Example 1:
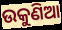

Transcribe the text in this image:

ଉକୁଣିଆ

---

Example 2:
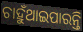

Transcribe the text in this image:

ଚାହୁଁଥାଇପାରନ୍ତି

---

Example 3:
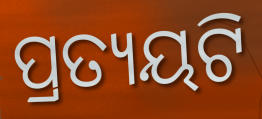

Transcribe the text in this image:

ପ୍ରତ୍ୟୟଟି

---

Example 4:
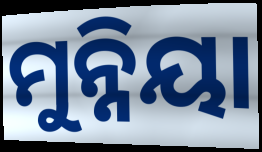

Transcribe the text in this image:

ମୁନ୍ନିୟା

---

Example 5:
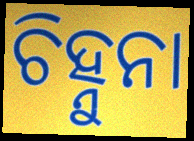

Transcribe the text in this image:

ଚିହ୍ନୁନା